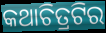
କଥାଚିତ୍ରଟିର